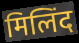
मिलिंद